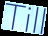
Till